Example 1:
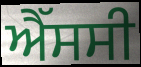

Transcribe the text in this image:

ਐੱਸਸੀ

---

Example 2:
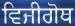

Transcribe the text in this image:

ਵਿਜੀਗੋਥ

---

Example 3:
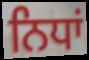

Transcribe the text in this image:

ਨਿਧਾਂ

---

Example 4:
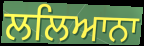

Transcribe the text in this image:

ਲਲਿਆਨਾ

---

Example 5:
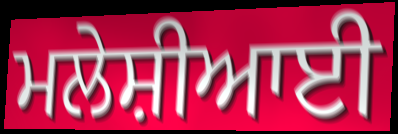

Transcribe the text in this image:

ਮਲੇਸ਼ੀਆਈ